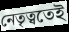
নেতৃত্বতেই